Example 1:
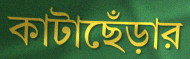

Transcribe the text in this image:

কাটাছেঁড়ার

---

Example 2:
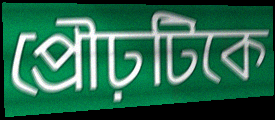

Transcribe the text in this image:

প্রৌঢ়টিকে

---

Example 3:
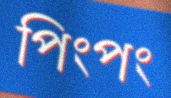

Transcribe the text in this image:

পিংপং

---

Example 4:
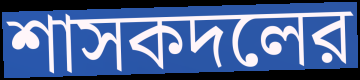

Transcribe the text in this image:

শাসকদলের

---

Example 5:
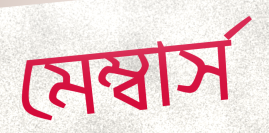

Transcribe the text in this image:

মেম্বার্স